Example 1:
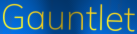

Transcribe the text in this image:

Gauntlet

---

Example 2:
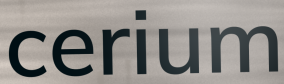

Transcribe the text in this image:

cerium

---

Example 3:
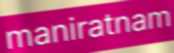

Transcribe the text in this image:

maniratnam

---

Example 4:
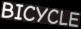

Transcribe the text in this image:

BICYCLE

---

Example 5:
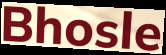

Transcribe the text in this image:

Bhosle